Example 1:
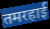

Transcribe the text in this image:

तमरहाई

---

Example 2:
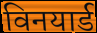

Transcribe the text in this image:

विनयार्ड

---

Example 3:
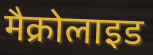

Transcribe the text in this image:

मैक्रोलाइड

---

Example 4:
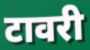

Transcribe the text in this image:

टावरी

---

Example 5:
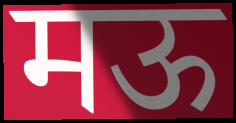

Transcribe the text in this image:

मऊ